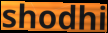
shodhi